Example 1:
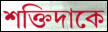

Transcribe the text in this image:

শক্তিদাকে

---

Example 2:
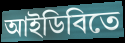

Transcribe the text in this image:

আইডিবিতে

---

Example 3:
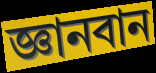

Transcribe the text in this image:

জ্ঞানবান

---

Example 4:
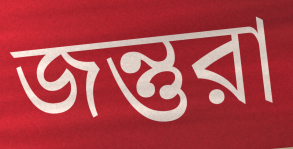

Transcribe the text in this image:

জন্তুরা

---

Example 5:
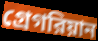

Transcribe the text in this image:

গ্রেগরিয়ান